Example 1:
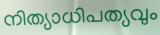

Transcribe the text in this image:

നിത്യാധിപത്യവും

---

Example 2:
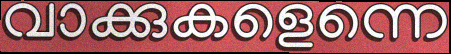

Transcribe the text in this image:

വാക്കുകളെന്നെ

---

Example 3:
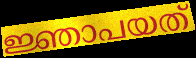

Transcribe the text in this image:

ജ്ഞാപയത്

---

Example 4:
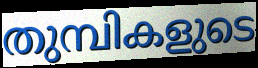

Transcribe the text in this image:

തുമ്പികളുടെ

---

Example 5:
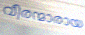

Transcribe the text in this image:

വീരന്മാരായ